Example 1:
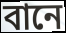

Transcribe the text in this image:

বানে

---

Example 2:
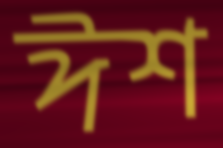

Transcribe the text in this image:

ঈশ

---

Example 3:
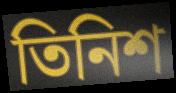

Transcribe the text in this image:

তিনিশ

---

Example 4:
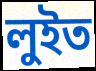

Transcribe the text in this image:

লুইত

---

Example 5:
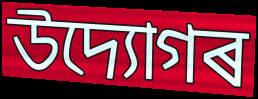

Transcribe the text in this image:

উদ্যোগৰ